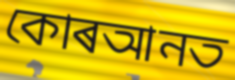
কোৰআনত